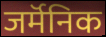
जर्मॅनिक